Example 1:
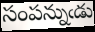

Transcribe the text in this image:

సంపన్నుఁడు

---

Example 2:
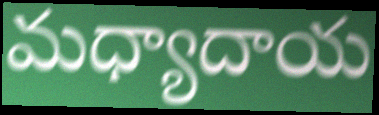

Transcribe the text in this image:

మధ్యాదాయ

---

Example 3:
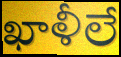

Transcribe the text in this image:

ఖాళీలే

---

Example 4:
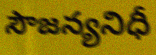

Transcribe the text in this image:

సౌజన్యనిధీ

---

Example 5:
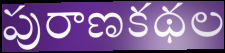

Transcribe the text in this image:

పురాణకథల